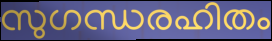
സുഗന്ധരഹിതം